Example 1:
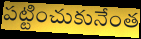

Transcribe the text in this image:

పట్టించుకునేంత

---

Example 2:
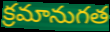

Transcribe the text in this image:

క్రమానుగత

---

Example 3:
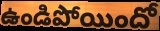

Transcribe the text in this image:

ఉండిపోయిందో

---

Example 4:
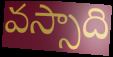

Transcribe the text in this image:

వస్సాది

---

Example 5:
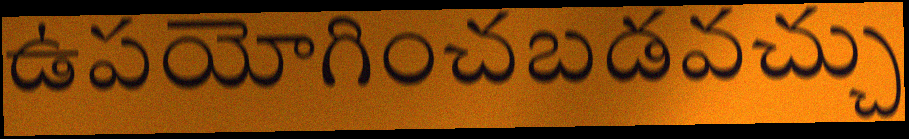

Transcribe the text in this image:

ఉపయోగించబడవచ్చు